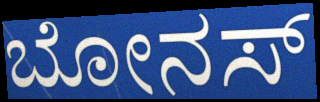
ಬೋನಸ್